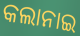
କଲାନାଇ